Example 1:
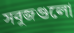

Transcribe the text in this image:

সবুজগুলো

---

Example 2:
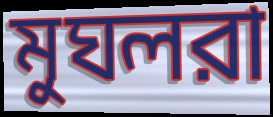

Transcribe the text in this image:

মুঘলরা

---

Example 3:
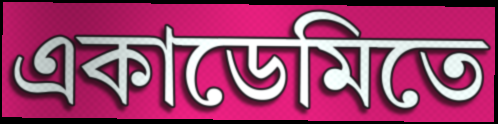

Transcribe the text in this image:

একাডেমিতে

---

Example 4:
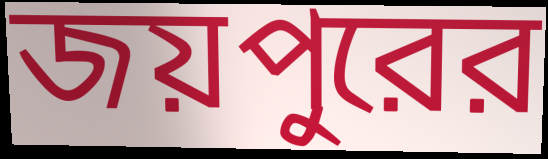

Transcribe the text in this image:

জয়পুরের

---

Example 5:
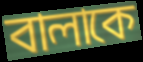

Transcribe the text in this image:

বালাকে